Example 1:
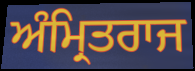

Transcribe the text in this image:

ਅੰਮ੍ਰਿਤਰਾਜ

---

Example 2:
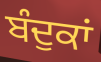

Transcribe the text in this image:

ਬੰਦੁਕਾਂ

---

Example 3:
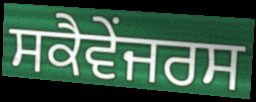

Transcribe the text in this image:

ਸਕੈਵੇਂਜਰਸ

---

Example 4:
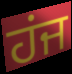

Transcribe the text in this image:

ਹਂਜ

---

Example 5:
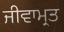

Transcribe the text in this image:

ਜੀਵਾਮ੍ਰਤ